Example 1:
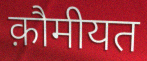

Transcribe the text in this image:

क़ौमीयत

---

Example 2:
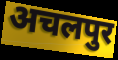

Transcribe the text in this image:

अचलपुर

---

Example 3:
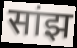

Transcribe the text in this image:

सांझ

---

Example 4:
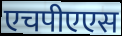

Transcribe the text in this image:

एचपीएएस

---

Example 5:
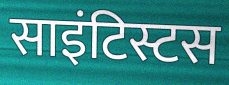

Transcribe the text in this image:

साइंटिस्टस